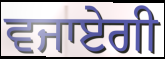
ਵਜਾਏਗੀ